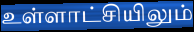
உள்ளாட்சியிலும்